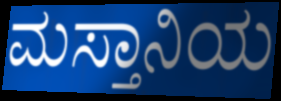
ಮಸ್ತಾನಿಯ